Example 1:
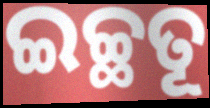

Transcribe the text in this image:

ଇଚ୍ଛତୂ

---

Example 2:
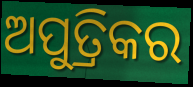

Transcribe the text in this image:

ଅପୁତ୍ରିକର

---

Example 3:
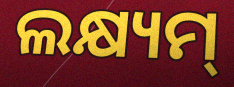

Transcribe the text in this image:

ଲକ୍ଷ୍ୟମ୍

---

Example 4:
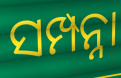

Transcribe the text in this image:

ସମ୍ପନ୍ନା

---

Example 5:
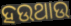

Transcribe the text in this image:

ହଉଥାଉ